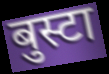
बुस्टा